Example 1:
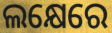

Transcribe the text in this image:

ଲକ୍ଷେରେ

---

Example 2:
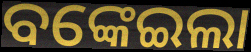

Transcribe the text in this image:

ବଙ୍କେଇଲା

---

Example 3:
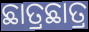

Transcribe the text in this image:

ଛାତ୍ରଛାତ୍ର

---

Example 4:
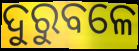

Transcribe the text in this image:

ଦୁରୁବଳେ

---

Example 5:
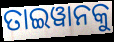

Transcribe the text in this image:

ତାଇୱାନକୁ